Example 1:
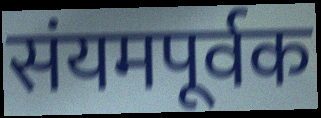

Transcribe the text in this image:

संयमपूर्वक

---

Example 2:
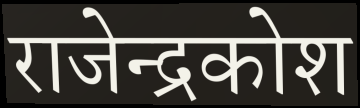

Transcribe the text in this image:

राजेन्द्रकोश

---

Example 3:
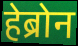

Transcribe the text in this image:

हेब्रोन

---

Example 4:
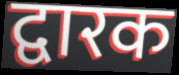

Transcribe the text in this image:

द्वारक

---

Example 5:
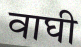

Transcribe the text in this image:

वाघी